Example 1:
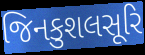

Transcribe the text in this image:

જિનકુશલસૂરિ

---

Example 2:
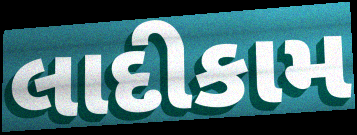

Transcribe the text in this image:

લાદીકામ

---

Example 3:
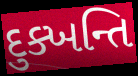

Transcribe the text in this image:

દુક્ખન્તિ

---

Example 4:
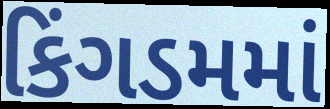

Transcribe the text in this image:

કિંગડમમાં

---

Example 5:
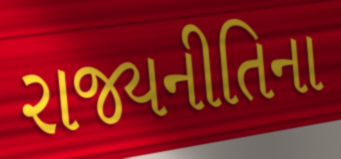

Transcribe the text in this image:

રાજ્યનીતિના